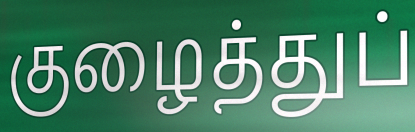
குழைத்துப்